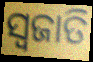
ସ୍ୱଜାତି